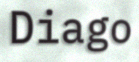
Diago